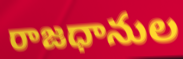
రాజధానుల